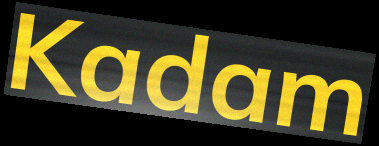
Kadam